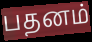
பதனம்